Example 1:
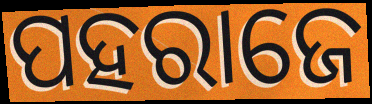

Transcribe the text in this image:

ପହରାଜେ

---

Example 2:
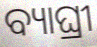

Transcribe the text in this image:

ବ୍ୟାଘ୍ରୀ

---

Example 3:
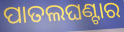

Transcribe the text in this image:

ପାତଲଘଣ୍ଟାର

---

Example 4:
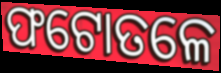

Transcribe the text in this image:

ଫଟୋତଳେ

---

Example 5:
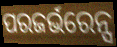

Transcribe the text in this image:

ପରଜର୍ଭରେନ୍ସ